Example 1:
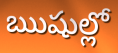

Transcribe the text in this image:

ఋషుల్లో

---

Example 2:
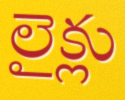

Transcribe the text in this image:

లైక్లు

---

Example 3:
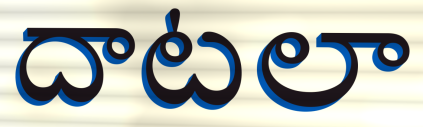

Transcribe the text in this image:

దాటలా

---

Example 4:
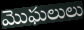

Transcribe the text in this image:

మొఘలులు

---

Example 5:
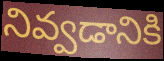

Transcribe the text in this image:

నివ్వడానికి